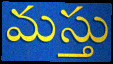
మస్తు